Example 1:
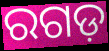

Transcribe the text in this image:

ରଗଡ଼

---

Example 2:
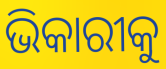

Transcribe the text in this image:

ଭିକାରୀକୁ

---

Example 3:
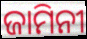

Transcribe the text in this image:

ଜାମିନୀ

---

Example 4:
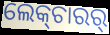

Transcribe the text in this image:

ଲେକ୍‍ଚାରର୍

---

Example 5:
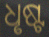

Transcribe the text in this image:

ଧୃଷ୍ଟ